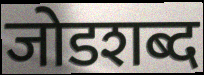
जोडशब्द